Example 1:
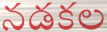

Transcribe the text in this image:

నడకల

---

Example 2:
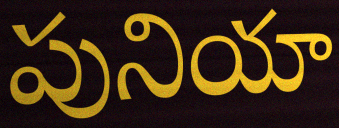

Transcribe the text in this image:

పునియా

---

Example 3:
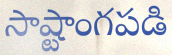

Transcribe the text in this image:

సాష్టాంగపడి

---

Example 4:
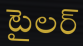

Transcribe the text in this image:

టైలర్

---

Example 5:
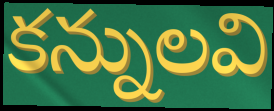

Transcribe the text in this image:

కన్నులవి